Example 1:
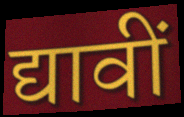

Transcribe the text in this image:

द्यावीं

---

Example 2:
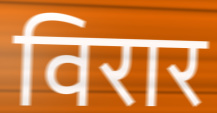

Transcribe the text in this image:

विरार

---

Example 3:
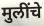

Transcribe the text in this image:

मुलींचे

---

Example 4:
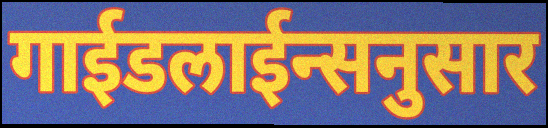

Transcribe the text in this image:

गाईडलाईन्सनुसार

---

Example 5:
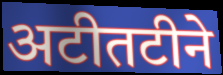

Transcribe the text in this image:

अटीतटीने